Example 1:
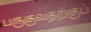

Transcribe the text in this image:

பருகுவதற்குப்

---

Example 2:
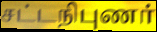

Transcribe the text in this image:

சட்டநிபுணர்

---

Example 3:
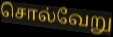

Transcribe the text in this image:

சொல்வேறு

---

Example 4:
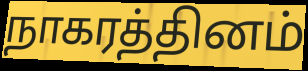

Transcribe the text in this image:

நாகரத்தினம்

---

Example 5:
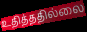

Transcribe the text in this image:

உதித்ததில்லை